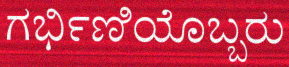
ಗರ್ಭಿಣಿಯೊಬ್ಬರು